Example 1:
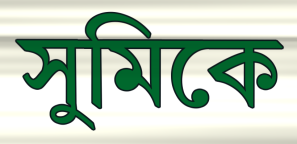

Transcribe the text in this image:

সুমিকে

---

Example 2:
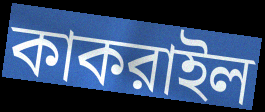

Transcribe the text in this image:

কাকরাইল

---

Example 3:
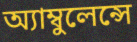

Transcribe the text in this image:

অ্যাম্বুলেন্সে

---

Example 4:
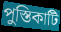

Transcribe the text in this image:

পুস্তিকাটি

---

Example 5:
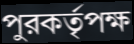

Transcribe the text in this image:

পুরকর্তৃপক্ষ